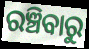
ରଞ୍ଚିବାରୁ